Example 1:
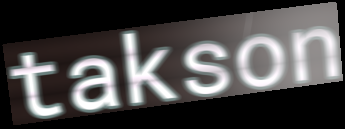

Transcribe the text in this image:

takson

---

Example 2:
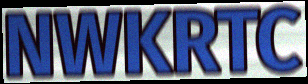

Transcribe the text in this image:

NWKRTC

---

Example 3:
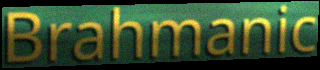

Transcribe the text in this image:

Brahmanic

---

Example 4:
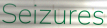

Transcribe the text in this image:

Seizures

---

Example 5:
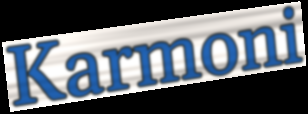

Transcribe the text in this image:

Karmoni